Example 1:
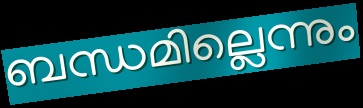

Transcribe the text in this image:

ബന്ധമില്ലെന്നും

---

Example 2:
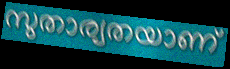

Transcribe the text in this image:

സുതാര്യതയാണ്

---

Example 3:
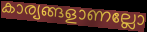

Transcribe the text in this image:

കാര്യങ്ങളാണല്ലോ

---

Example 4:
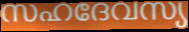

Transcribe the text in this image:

സഹദേവസ്യ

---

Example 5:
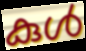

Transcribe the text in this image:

കുൾ